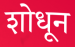
शोधून